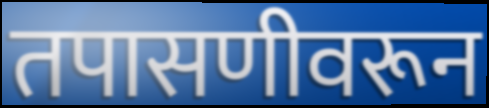
तपासणीवरून